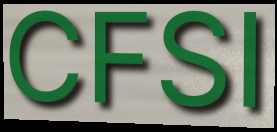
CFSI